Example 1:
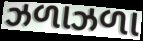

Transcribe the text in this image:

ઝળાઝળા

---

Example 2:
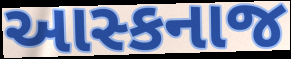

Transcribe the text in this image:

આસ્કનાજ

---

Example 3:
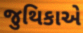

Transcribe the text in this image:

જુથિકાએ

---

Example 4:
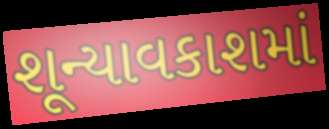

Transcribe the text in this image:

શૂન્યાવકાશમાં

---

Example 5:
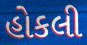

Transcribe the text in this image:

હોકલી